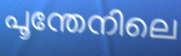
പൂന്തേനിലെ